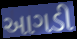
આગડી